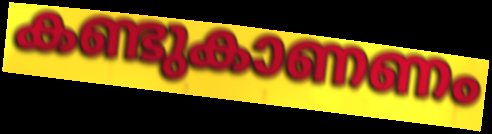
കണ്ടുകാണണം